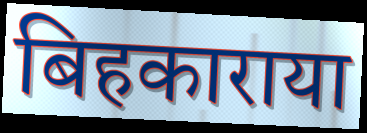
बिहकाराया